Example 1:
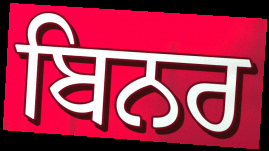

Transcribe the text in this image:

ਬਿਨਰ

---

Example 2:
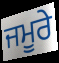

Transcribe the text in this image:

ਜਮੂਰੇ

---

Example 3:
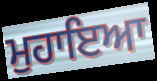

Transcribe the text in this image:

ਮੁਹਾਇਆ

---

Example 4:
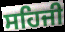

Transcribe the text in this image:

ਸਹਿਜੀ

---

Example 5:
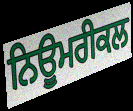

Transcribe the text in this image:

ਨਿਊਮਰੀਕਲ